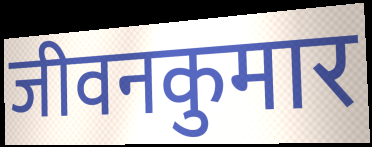
जीवनकुमार